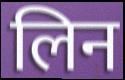
लिन